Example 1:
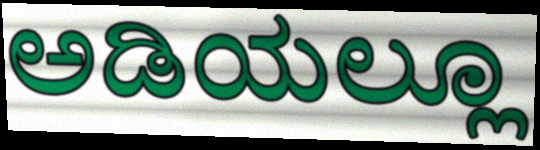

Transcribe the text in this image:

ಅಡಿಯಲ್ಲೂ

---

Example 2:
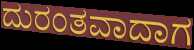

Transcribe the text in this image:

ದುರಂತವಾದಾಗ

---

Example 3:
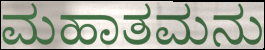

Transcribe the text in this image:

ಮಹಾತಮನು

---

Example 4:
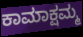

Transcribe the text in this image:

ಕಾಮಾಕ್ಷಮ್ಮ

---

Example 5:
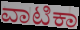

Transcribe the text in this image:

ವಾಟಿಕಾ